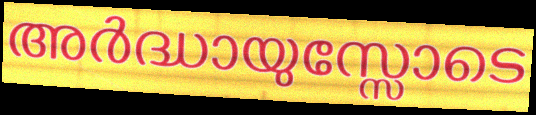
അർദ്ധായുസ്സോടെ